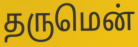
தருமென்